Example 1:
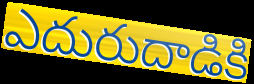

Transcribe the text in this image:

ఎదురుదాడికి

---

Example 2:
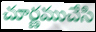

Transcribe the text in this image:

చూర్ణముచేసి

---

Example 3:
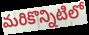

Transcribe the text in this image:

మరికొన్నిటిలో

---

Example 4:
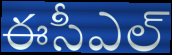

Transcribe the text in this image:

ఈసీఎల్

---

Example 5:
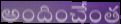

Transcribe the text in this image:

అందించేంత